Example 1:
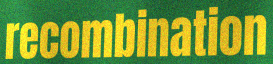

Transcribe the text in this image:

recombination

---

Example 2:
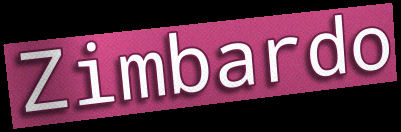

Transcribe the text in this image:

Zimbardo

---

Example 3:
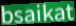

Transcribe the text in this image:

bsaikat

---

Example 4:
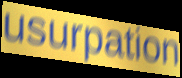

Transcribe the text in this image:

usurpation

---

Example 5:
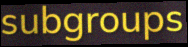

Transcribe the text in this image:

subgroups